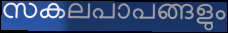
സകലപാപങ്ങളും